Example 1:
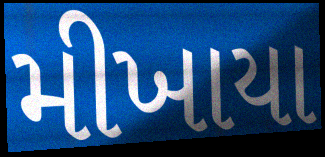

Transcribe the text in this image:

મીખાયા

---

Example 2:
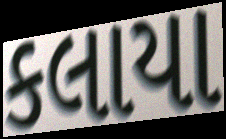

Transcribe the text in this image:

કલાયા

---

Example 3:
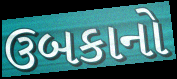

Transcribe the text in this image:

ઉબકાનો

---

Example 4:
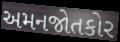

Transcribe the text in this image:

અમનજોતકોર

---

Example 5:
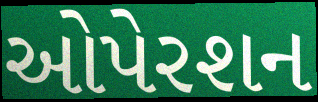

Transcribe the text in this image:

ઓપેરશન